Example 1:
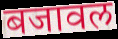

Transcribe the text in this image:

बजावल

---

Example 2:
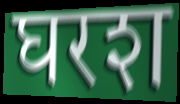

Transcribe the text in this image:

घरश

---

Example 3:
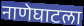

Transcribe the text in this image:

नाणेघाटला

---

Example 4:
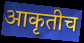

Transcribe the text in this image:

आकृतीच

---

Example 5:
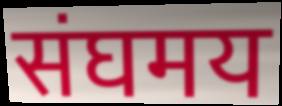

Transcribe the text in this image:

संघमय